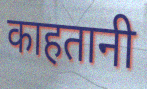
काहतानी